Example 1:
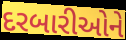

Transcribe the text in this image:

દરબારીઓને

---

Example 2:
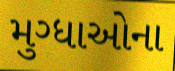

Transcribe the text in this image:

મુગ્ધાઓના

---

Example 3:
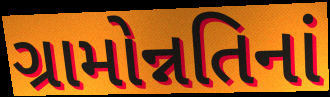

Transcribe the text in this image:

ગ્રામોન્નતિનાં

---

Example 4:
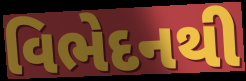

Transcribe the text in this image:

વિભેદનથી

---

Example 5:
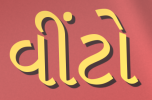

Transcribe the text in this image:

વીંટો